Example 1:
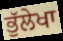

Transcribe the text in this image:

ਭੁੱਲੇਖਾ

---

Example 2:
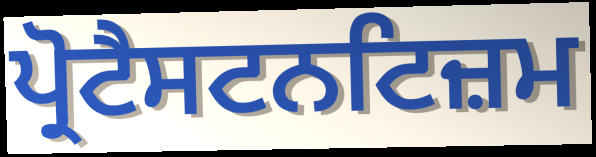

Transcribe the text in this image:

ਪ੍ਰੋਟੈਸਟਨਟਿਜ਼ਮ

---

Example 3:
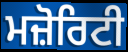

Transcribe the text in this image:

ਮਜ਼ੋਰਿਟੀ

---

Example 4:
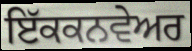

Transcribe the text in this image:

ਇੱਕਕਨਵੇਅਰ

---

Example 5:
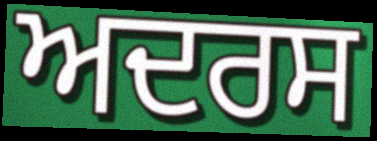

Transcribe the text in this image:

ਅਦਰਸ